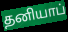
தனியாப்